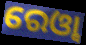
ରେଓ୍ବା